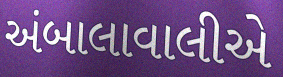
અંબાલાવાલીએ